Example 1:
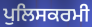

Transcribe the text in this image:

ਪੁਲਿਸਕਰਮੀ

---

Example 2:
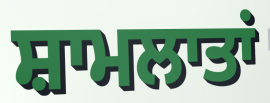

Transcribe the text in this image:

ਸ਼ਾਮਲਾਤਾਂ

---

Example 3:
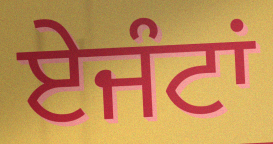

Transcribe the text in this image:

ਏਜੰਟਾਂ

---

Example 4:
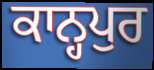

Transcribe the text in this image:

ਕਾਨ੍ਹਪੁਰ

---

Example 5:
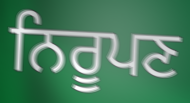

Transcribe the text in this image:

ਨਿਰੂਪਣ